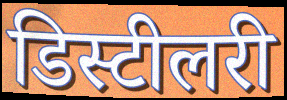
डिस्टीलरी